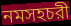
নমসহচরী